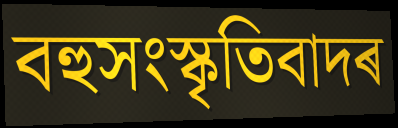
বহুসংস্কৃতিবাদৰ